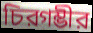
চিরগম্ভীর